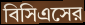
বিসিএসের